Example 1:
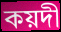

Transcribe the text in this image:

কয়দী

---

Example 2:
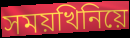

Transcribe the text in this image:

সময়খিনিয়ে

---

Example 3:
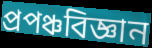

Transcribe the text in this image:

প্ৰপঞ্চবিজ্ঞান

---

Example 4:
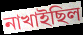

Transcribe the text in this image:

নাখাইছিল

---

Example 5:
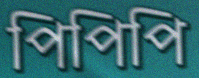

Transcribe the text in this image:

পিপিপি